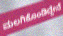
ಮಲಗಿಕೊಂಡಿದ್ದೇನೆ